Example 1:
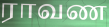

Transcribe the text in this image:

ராவண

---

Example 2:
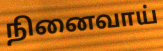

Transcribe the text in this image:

நினைவாய்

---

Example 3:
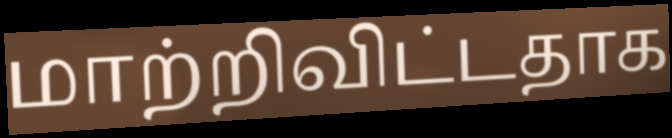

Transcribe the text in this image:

மாற்றிவிட்டதாக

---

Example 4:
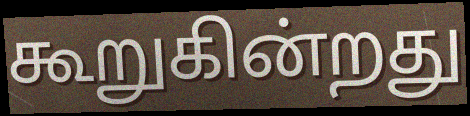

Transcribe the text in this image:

கூறுகின்றது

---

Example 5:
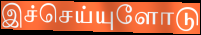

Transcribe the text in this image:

இச்செய்யுளோடு